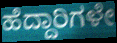
ಹೆದ್ದಾರಿಗಳೇ